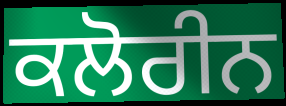
ਕਲੋਰੀਨ